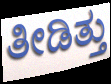
ತೀಡಿತ್ತು